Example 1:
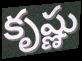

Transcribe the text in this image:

కృష్ణు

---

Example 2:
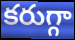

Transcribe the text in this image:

కరుగ్గా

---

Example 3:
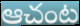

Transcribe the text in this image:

ఆచంట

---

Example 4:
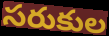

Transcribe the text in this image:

సరుకుల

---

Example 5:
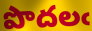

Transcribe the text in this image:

పొదలఁ